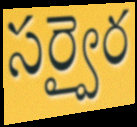
సర్వైర